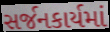
સર્જનકાર્યમાં